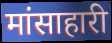
मांसाहारी